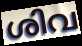
ശിവ